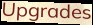
Upgrades